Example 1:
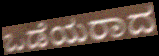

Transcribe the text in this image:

ಒಡೆಯರಾದ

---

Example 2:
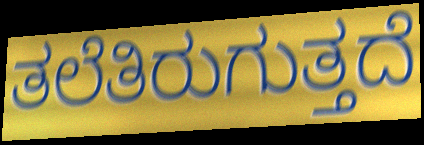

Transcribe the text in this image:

ತಲೆತಿರುಗುತ್ತದೆ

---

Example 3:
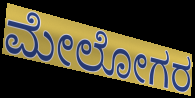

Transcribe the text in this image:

ಮೇಲೋಗರ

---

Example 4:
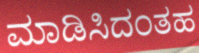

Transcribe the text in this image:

ಮಾಡಿಸಿದಂತಹ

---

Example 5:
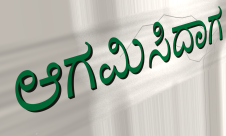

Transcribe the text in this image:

ಆಗಮಿಸಿದಾಗ